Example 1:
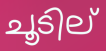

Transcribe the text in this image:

ചൂടില്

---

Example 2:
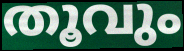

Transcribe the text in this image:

തൂവും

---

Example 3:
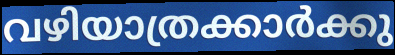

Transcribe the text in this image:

വഴിയാത്രക്കാർക്കു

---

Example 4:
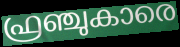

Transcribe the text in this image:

ഫ്രഞ്ചുകാരെ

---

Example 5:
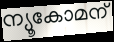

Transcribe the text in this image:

ന്യൂകോമന്